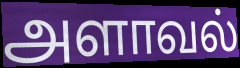
அளாவல்